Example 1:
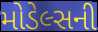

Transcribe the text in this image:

મોડેલ્સની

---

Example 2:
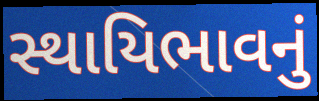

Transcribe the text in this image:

સ્થાયિભાવનું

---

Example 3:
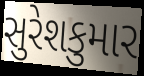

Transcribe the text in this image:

સુરેશકુમાર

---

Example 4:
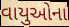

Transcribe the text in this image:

વાયુઓના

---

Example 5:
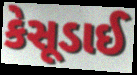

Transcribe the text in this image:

કેસૂડાઈ